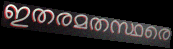
ഇതരമതസ്ഥരെ